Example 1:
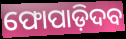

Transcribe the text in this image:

ଫୋପାଡ଼ିଦବ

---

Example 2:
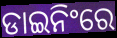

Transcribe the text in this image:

ଡାଇନିଂରେ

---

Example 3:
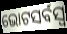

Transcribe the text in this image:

ଭୋଟସର୍ବସ୍ବ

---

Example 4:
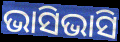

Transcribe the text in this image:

ଭାସିଭାସି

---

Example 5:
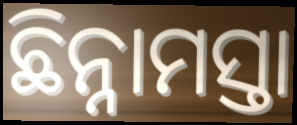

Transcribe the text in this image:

ଛିନ୍ନାମସ୍ତା